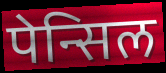
पेन्सिल